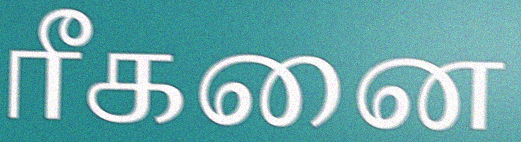
ரீகனை